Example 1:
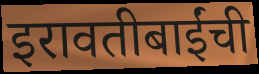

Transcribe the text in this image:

इरावतीबाईंची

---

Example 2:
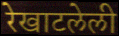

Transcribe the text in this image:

रेखाटलेली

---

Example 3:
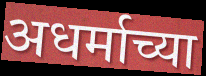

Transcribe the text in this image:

अधर्माच्या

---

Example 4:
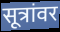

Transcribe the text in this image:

सूत्रांवर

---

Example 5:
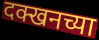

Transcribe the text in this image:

दक्खनच्या